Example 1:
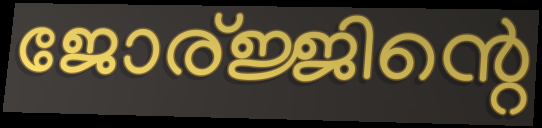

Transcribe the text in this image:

ജോര്ജ്ജിന്റെ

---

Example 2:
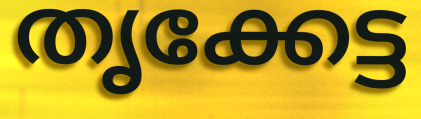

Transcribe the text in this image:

തൃക്കേട്ട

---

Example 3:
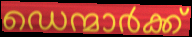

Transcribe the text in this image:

ഡെന്മാർക്ക്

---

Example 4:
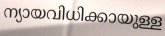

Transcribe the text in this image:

ന്യായവിധിക്കായുള്ള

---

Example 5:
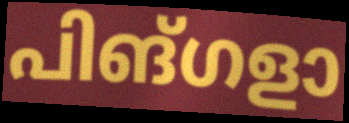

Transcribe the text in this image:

പിങ്ഗളാ